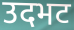
उदभट